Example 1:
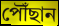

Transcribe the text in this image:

পৌঁছান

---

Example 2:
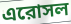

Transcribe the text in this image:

এরোসল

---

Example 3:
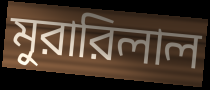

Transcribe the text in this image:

মুরারিলাল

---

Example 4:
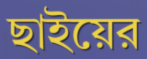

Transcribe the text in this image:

ছাইয়ের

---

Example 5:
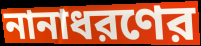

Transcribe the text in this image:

নানাধরণের